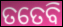
ତତେବି